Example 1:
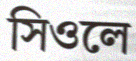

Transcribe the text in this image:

সিওলে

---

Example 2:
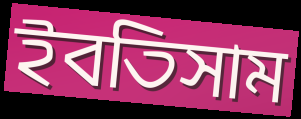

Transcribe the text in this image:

ইবতিসাম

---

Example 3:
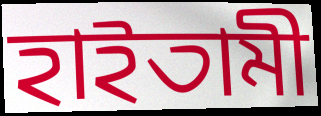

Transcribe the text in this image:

হাইতামী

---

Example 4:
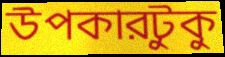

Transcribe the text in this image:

উপকারটুকু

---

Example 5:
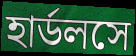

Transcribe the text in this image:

হার্ডলসে